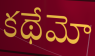
కథేమో